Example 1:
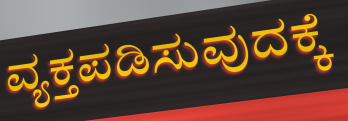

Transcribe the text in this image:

ವ್ಯಕ್ತಪಡಿಸುವುದಕ್ಕೆ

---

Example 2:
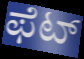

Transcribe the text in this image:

ಫೆಟ್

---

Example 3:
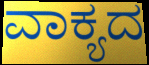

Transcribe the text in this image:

ವಾಕ್ಯದ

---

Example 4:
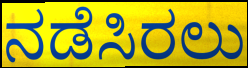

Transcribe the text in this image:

ನಡೆಸಿರಲು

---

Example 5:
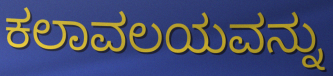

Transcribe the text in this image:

ಕಲಾವಲಯವನ್ನು